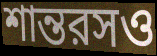
শান্তরসও